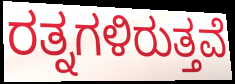
ರತ್ನಗಳಿರುತ್ತವೆ